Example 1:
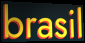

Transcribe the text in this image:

brasil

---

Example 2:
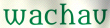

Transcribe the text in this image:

wachau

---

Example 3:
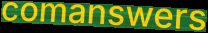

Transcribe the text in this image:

comanswers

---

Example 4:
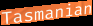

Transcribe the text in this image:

Tasmanian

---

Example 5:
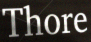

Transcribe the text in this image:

Thore